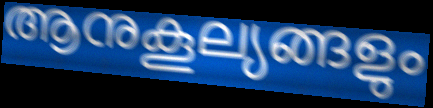
ആനുകൂല്യങ്ങളും